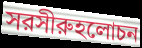
সরসীরুহলোচন